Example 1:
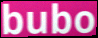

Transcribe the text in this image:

bubo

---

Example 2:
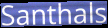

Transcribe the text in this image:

Santhals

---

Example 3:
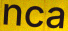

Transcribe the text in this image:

nca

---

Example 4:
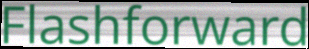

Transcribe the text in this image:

Flashforward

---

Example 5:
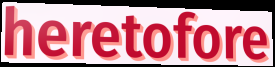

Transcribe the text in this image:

heretofore